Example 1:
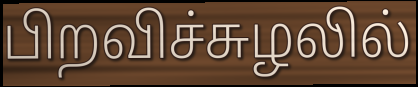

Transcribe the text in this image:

பிறவிச்சுழலில்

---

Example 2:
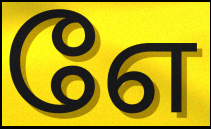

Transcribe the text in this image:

எே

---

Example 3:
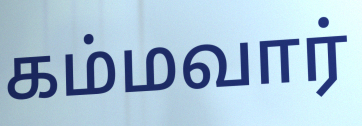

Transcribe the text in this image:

கம்மவார்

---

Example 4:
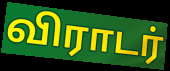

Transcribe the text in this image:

விராடர்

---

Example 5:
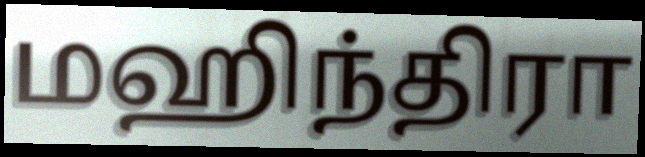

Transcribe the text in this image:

மஹிந்திரா